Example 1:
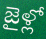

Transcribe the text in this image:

జైళ్లో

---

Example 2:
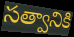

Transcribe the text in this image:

సత్వానికి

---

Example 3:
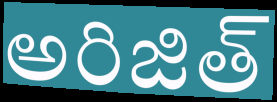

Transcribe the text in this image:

అరిజిత్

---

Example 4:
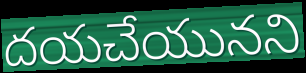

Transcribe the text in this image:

దయచేయునని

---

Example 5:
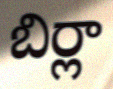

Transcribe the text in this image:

బిర్లా